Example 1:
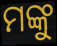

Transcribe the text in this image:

ମଙ୍କୁ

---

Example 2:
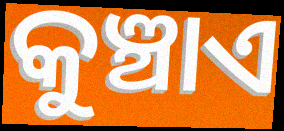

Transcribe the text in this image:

କୁଞ୍ଚାଏ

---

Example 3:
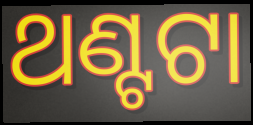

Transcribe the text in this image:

ଥଣ୍ଟଟା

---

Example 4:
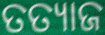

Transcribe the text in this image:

ତତ୍ୟାଜ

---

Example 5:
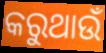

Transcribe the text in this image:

କରୁଥାଉଁ